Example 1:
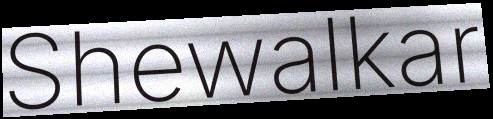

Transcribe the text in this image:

Shewalkar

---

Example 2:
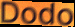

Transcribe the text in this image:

Dodo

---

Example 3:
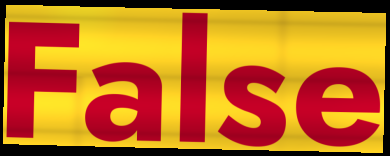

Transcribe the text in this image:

False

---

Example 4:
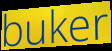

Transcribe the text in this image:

buker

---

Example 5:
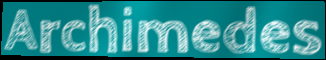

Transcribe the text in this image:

Archimedes